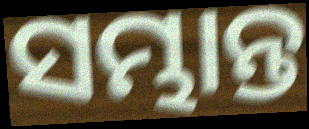
ସମ୍ଭାନ୍ତ